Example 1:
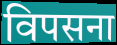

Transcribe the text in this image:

विपसना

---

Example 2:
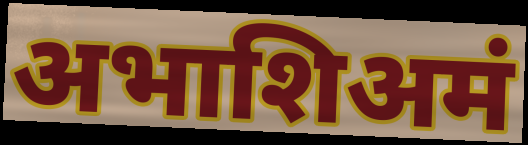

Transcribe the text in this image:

अभाशिअमं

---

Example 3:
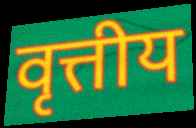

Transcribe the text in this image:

वृत्तीय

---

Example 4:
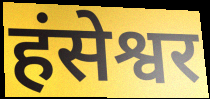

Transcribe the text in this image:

हंसेश्वर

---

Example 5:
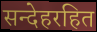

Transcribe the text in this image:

सन्देहरहित